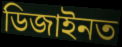
ডিজাইনত